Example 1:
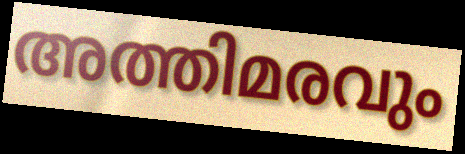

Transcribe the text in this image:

അത്തിമരവും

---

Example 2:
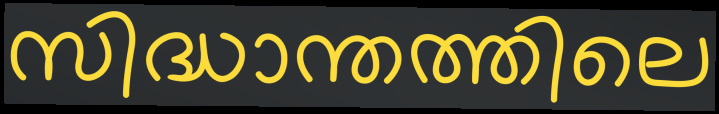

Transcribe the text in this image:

സിദ്ധാന്തത്തിലെ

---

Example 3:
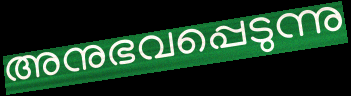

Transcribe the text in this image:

അനുഭവപ്പെടുന്നു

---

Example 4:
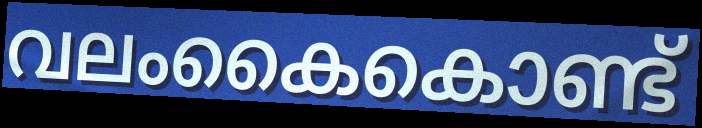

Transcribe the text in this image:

വലംകൈകൊണ്ട്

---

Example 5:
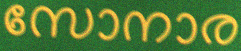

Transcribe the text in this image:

സോനാര